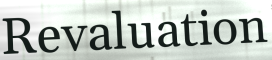
Revaluation